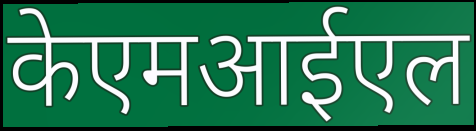
केएमआईएल